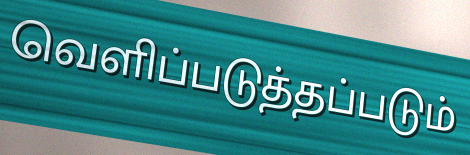
வெளிப்படுத்தப்படும்